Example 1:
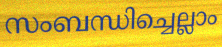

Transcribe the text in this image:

സംബന്ധിച്ചെല്ലാം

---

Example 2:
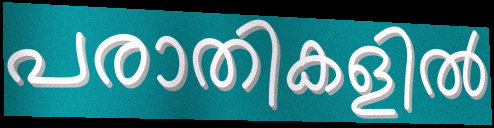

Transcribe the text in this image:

പരാതികളിൽ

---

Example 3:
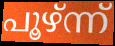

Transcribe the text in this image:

പൂഴ്ന്ന്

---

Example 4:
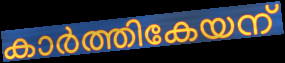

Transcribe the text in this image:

കാർത്തികേയന്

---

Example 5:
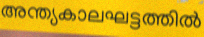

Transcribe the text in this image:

അന്ത്യകാലഘട്ടത്തിൽ